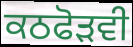
ਕਠਫੋੜਵੀ